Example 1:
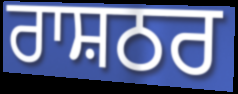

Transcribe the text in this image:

ਰਾਸ਼ਠਰ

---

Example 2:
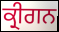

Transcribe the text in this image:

ਕ੍ਰੀਗਨ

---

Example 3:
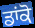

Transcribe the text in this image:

ਡਾਂਕੋ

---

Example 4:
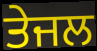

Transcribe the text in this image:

ਤੇਜਲ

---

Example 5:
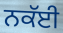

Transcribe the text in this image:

ਨਕੱਈ